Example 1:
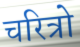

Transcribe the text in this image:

चरित्रो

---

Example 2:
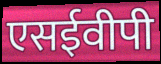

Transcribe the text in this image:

एसईवीपी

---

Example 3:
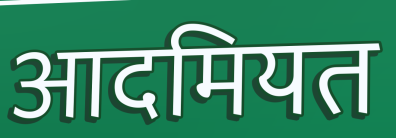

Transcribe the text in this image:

आदमियत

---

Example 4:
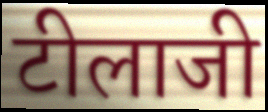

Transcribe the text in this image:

टीलाजी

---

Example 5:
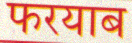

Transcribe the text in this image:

फरयाब